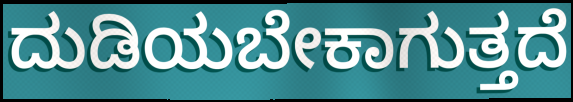
ದುಡಿಯಬೇಕಾಗುತ್ತದೆ